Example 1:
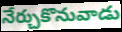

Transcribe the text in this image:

నేర్చుకొనువాడు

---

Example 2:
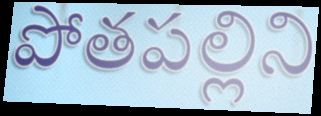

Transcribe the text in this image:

పోతపల్లిని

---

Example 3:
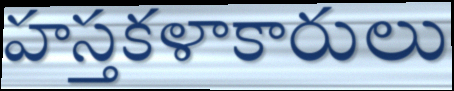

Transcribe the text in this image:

హస్తకళాకారులు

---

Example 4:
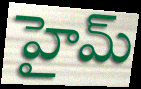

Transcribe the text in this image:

హైమ్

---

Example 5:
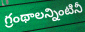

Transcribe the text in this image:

గ్రంథాలన్నింటినీ